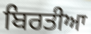
ਬਿਰਤੀਆ